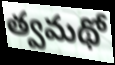
త్వమథో